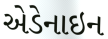
એડેનાઇન